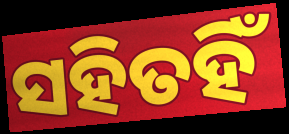
ସହିତହିଁ